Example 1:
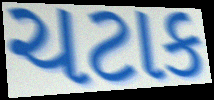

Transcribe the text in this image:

ચટાક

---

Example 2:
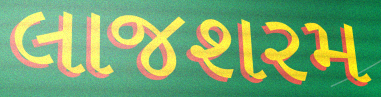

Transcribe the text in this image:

લાજશરમ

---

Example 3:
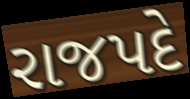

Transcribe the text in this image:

રાજપદે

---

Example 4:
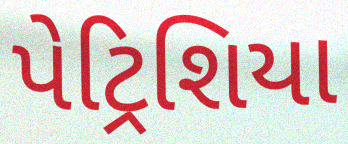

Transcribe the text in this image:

પેટ્રિશિયા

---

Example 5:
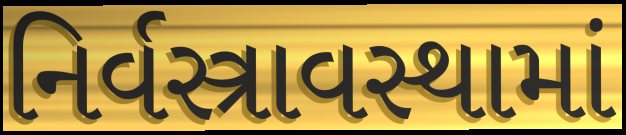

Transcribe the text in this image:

નિર્વસ્ત્રાવસ્થામાં